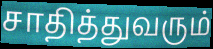
சாதித்துவரும்